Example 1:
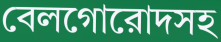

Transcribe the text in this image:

বেলগোরোদসহ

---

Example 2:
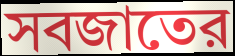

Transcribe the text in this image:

সবজাতের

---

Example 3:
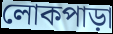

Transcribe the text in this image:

লোকপাড়া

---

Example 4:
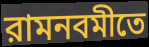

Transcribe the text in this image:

রামনবমীতে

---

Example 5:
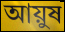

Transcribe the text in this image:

আয়ুষ